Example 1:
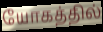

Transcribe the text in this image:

யோகத்தில்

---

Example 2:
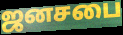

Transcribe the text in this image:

ஜனசபை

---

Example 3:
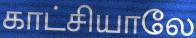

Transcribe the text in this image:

காட்சியாலே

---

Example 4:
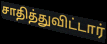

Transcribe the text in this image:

சாதித்துவிட்டார்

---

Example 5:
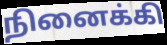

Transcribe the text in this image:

நினைக்கி